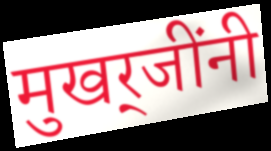
मुखर्जींनी